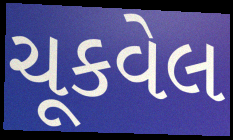
ચૂકવેલ